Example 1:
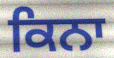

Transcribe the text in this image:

ਕਿਨਾ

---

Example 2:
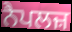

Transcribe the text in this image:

ਨੈਪਲਜ਼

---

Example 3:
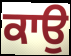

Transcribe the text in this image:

ਕਾਉ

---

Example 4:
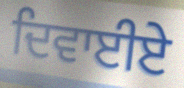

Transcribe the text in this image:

ਦਿਵਾਈਏ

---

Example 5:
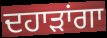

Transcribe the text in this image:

ਦਹਾੜਾਂਗਾ